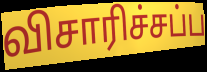
விசாரிச்சப்ப